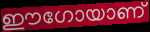
ഈഗോയാണ്